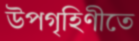
উপগৃহিণীতে